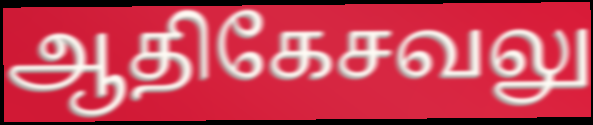
ஆதிகேசவலு